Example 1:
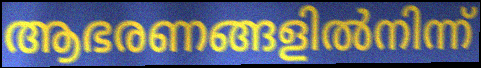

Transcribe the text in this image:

ആഭരണങ്ങളിൽനിന്ന്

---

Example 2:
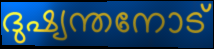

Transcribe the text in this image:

ദുഷ്യന്തനോട്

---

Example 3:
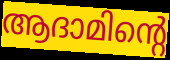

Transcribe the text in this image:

ആദാമിന്റെ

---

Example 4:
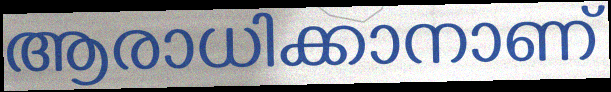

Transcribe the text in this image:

ആരാധിക്കാനാണ്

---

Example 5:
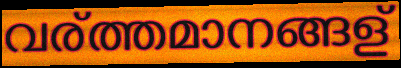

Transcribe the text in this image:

വര്ത്തമാനങ്ങള്